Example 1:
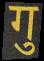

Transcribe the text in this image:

गु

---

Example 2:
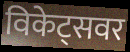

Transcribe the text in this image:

विकेट्सवर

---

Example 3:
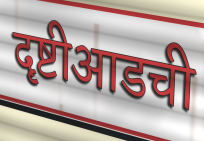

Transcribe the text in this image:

दृष्टीआडची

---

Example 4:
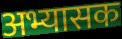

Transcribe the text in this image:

अभ्यासक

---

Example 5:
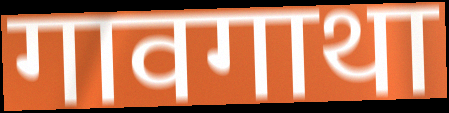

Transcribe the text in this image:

गावगाथा